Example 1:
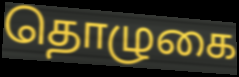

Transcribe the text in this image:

தொழுகை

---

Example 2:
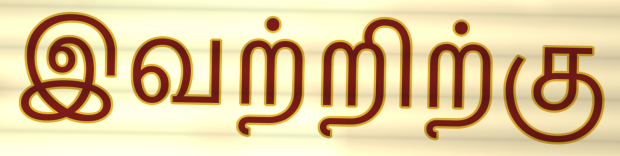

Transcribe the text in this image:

இவற்றிற்கு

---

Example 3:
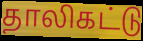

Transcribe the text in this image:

தாலிகட்டு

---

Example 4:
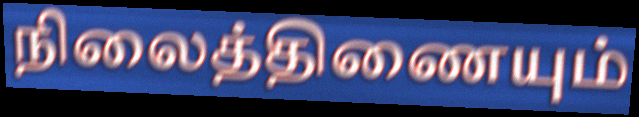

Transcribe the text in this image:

நிலைத்திணையும்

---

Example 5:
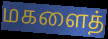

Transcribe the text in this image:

மகளைத்